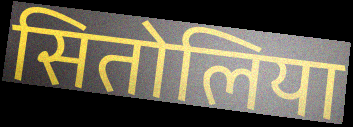
सितोलिया